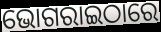
ଭୋଗରାଇଠାରେ